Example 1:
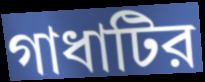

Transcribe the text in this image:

গাধাটির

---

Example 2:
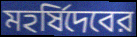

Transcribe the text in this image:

মহর্ষিদেবের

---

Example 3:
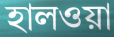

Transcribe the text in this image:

হালওয়া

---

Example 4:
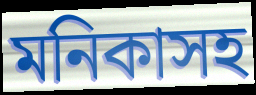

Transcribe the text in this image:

মনিকাসহ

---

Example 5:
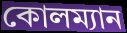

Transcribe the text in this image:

কোলম্যান